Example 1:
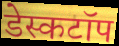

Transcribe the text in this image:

डेस्कटॉप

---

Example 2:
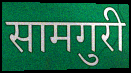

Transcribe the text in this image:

सामगुरी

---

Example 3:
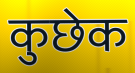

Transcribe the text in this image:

कुछेक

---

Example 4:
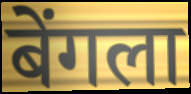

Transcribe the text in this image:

बेंगला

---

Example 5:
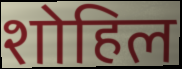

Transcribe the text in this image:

शोहिल